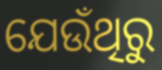
ଯେଉଁଥିରୁ